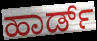
ಹಾರ್ಡ್